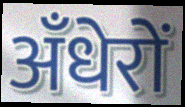
अँधेरों